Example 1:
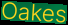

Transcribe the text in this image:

Oakes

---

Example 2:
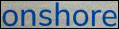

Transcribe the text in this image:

onshore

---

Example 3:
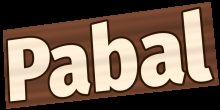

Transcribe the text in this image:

Pabal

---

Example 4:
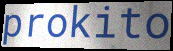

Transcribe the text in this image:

prokito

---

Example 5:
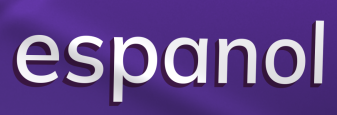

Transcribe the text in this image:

espanol